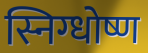
स्निग्धोष्ण